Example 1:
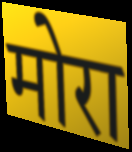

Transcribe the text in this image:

मोरा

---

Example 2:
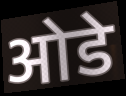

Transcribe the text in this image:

ओडे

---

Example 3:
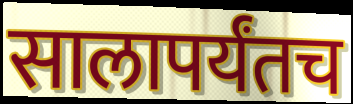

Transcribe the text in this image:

सालापर्यंतच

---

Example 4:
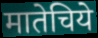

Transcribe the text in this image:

मातेचिये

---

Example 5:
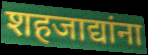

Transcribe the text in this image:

शहजाद्यांना